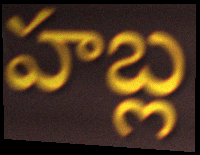
హబ్ల